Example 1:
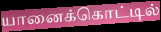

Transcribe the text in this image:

யானைக்கொட்டில்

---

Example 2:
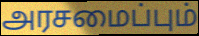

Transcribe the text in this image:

அரசமைப்பும்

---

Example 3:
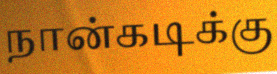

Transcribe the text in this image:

நான்கடிக்கு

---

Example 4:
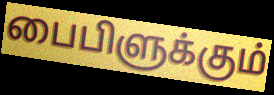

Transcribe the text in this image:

பைபிளுக்கும்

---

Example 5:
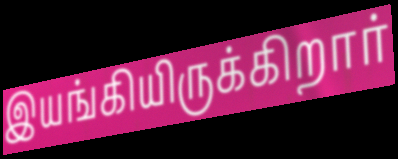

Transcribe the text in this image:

இயங்கியிருக்கிறார்